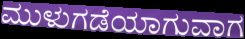
ಮುಳುಗಡೆಯಾಗುವಾಗ